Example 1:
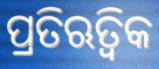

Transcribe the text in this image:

ପ୍ରତିଋତ୍ୱିକ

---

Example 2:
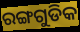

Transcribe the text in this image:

ରଙ୍ଗଗୁଡିକ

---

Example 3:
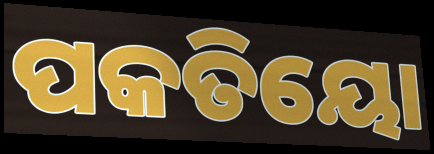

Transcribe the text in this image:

ପକତିୟୋ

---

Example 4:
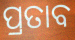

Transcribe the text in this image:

ପ୍ରତାବ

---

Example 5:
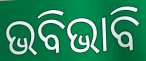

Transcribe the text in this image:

ଭବିଭାବି